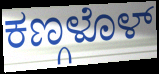
ಕಣ್ಗಳೊಳ್